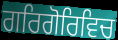
ਗਰਿਗੋਰਿਵਿਚ